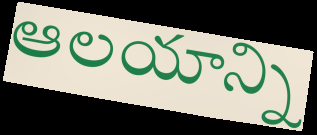
ఆలయాన్ని